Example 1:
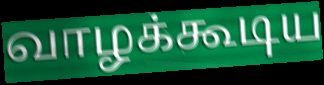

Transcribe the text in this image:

வாழக்கூடிய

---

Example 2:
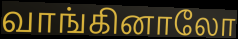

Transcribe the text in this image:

வாங்கினாலோ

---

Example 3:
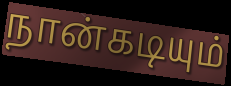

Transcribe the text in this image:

நான்கடியும்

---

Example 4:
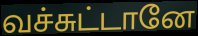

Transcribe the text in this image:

வச்சுட்டானே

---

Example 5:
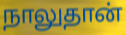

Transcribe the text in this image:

நாலுதான்